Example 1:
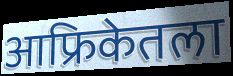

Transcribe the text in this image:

आफ्रिकेतला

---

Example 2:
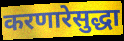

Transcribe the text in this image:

करणारेसुद्धा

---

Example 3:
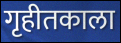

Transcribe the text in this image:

गृहीतकाला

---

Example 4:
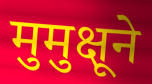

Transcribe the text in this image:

मुमुक्षूने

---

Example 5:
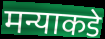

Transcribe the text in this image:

मन्याकडे